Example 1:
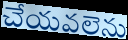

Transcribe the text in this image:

చేయవలెను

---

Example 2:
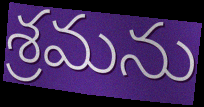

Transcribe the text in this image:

శ్రమను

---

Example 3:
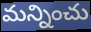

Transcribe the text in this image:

మన్నించు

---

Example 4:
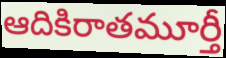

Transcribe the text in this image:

ఆదికిరాతమూర్తీ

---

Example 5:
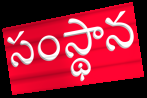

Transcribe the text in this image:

సంస్థాన